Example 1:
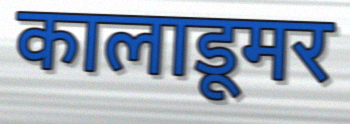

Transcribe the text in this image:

कालाडूमर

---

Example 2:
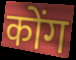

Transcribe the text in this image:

कोंग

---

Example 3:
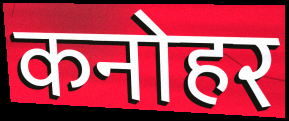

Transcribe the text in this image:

कनोहर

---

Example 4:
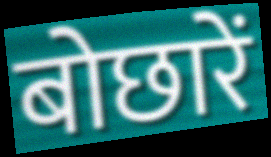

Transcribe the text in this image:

बोछारें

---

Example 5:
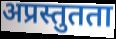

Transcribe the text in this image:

अप्रस्तुतता